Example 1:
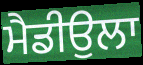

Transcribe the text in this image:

ਮੈਡੀਉਲਾ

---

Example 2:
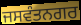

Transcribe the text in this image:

ਜਸਵੰਤਨਗਰ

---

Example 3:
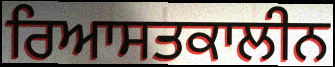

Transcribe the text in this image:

ਰਿਆਸਤਕਾਲੀਨ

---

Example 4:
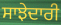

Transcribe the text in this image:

ਸਾਝੇਦਾਰੀ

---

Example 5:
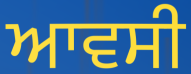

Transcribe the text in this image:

ਆਵਸੀ